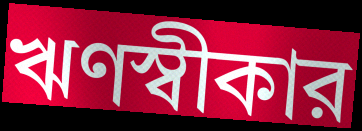
ঋণস্বীকার